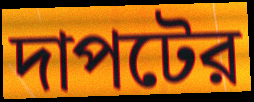
দাপটের